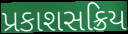
પ્રકાશસક્રિય